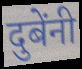
दुबेंनी